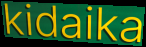
kidaika